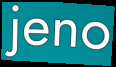
jeno